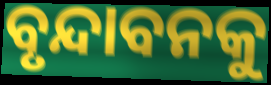
ବୃନ୍ଦାବନକୁ